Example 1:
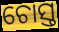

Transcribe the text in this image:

ଚୋସ୍ତ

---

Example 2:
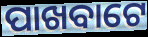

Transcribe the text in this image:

ପାଖବାଟେ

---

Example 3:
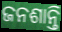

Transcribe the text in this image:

ଜନଶାନ୍ତି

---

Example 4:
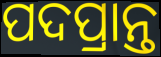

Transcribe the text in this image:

ପଦପ୍ରାନ୍ତ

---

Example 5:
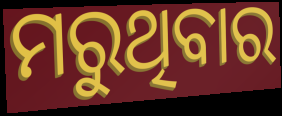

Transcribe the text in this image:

ମରୁଥିବାର